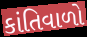
કાંતિવાળો